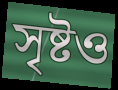
সৃষ্টও